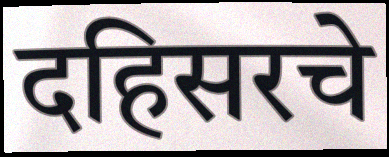
दहिसरचे